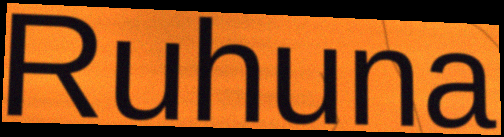
Ruhuna